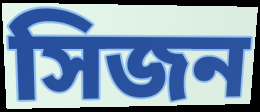
সিজন